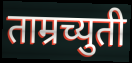
ताम्रच्युती